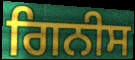
ਗਿਨੀਸ